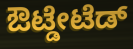
ಔಟ್ಡೇಟೆಡ್